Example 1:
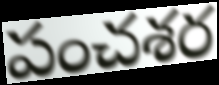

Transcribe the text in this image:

పంచశర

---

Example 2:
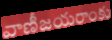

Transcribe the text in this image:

వాణీజయరాంకు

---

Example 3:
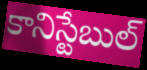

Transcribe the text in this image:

కానిస్టేబుల్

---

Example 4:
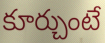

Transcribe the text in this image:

కూర్చుంటే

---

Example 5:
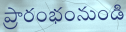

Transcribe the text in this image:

ప్రారంభంనుండి